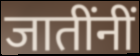
जातींनीं